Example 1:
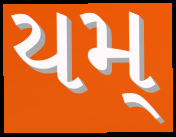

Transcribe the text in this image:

યમ્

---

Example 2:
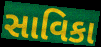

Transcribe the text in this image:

સાવિકા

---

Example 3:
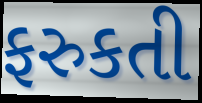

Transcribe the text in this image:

ફરુકતી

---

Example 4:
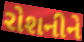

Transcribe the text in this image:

રોશનીને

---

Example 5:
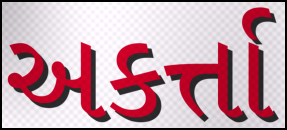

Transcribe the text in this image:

અકર્ત્તા